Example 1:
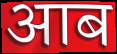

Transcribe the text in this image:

आब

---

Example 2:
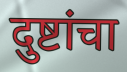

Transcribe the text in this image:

दुष्टांचा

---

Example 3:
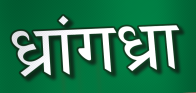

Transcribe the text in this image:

ध्रांगध्रा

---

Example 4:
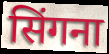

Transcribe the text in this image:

सिंगना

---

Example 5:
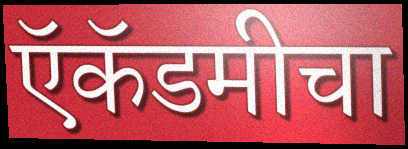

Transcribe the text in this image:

ऍकॅडमीचा